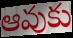
ఆవుకు